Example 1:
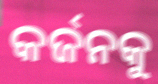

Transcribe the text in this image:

କର୍ଜନକୁ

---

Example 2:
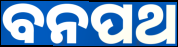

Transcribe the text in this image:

ବନପଥ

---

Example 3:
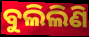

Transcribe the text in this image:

ବୁଲିଲିଣି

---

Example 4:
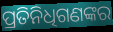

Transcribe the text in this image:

ପ୍ରତିନିଧିଗଣଙ୍କର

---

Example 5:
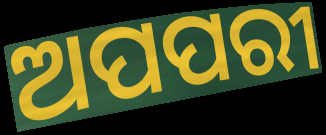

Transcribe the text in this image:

ଅପପରୀ